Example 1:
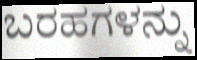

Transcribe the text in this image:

ಬರಹಗಳನ್ನು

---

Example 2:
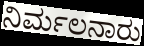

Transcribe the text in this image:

ನಿರ್ಮಲನಾರು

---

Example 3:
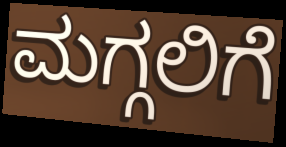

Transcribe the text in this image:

ಮಗ್ಗಲಿಗೆ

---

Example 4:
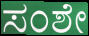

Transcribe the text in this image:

ಸಂಶೇ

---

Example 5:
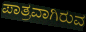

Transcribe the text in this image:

ಪಾತ್ರವಾಗಿರುವ